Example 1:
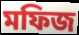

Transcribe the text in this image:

মফিজ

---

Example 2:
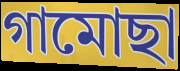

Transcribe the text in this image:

গামোছা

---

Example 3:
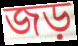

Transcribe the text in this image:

জড়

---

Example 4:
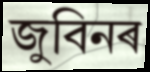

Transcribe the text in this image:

জুবিনৰ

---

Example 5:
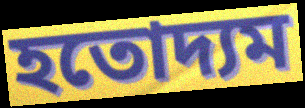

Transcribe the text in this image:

হতোদ্যম